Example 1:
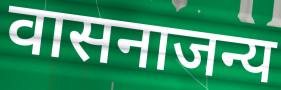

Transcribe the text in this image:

वासनाजन्य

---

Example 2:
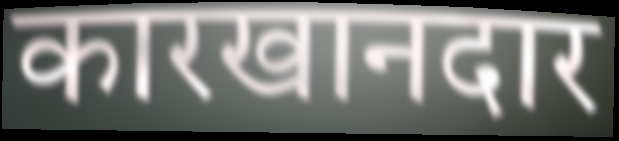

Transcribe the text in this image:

कारखानदार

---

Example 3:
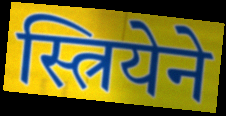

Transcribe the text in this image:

स्त्रियेने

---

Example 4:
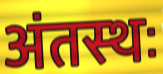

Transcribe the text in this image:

अंतस्थः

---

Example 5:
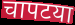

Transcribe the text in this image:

चापटया